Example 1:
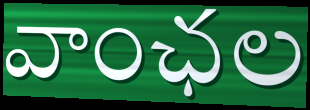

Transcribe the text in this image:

వాంఛల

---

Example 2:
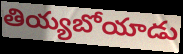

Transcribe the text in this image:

తియ్యబోయాడు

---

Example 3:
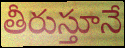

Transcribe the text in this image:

తీరుస్తూనే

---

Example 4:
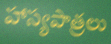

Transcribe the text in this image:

హాస్యపాత్రలు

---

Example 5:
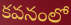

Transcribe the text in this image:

కవనంలో